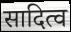
सादित्व